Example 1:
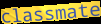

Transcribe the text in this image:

classmate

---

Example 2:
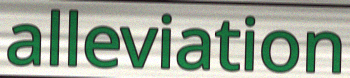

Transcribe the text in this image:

alleviation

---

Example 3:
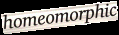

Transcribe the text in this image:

homeomorphic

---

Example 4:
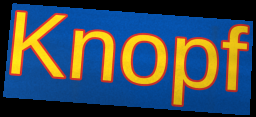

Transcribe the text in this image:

Knopf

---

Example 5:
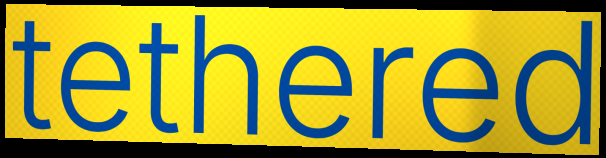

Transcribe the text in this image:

tethered